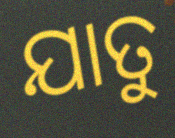
ଯାତୁ